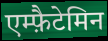
एम्फ़ैटेमिन